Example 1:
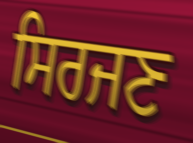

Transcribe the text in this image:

ਸਿਰਜਣ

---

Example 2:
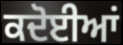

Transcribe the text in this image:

ਕਦੋਈਆਂ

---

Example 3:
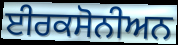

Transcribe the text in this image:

ਈਰਕਸੋਨੀਅਨ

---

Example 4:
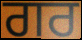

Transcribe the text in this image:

ਗਰ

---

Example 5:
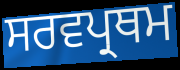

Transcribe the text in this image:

ਸਰਵਪ੍ਰਥਮ